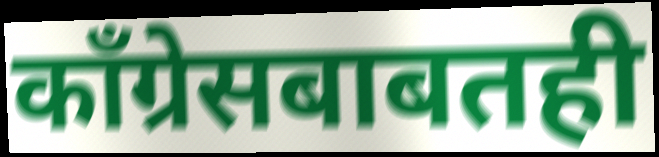
काँग्रेसबाबतही